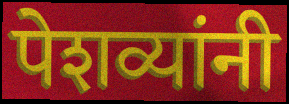
पेशव्यांनी